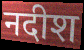
नदीश